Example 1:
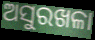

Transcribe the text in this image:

ଅସୁରଖଳା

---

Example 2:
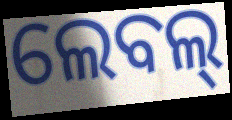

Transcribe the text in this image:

ଲେବଲ୍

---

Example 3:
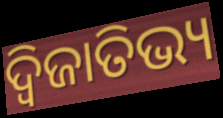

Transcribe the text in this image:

ଦ୍ବିଜାତିଭ୍ୟ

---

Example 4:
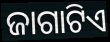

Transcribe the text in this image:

ଜାଗାଟିଏ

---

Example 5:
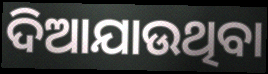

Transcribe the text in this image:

ଦିଆଯାଉଥିବା